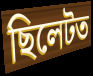
ছিলেটত